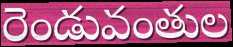
రెండువంతుల